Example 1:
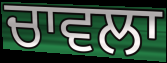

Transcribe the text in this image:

ਚਾਵਲਾ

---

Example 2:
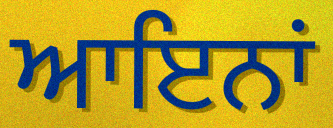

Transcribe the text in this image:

ਆਇਨਾਂ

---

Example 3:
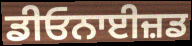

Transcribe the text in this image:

ਡੀਓਨਾਈਜ਼ਡ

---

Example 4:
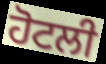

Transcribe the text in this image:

ਹੋਟਲੀ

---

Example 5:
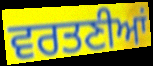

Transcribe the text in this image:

ਵਰਤਣੀਆਂ